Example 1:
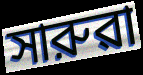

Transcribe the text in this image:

সাৰুৱা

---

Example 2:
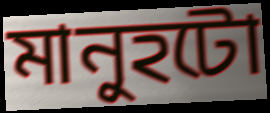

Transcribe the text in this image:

মানুহটো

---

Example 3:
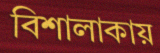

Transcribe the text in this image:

বিশালাকায়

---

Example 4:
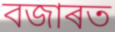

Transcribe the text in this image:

বজাৰত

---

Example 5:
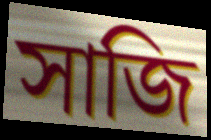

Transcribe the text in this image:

সাজি